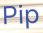
Pip